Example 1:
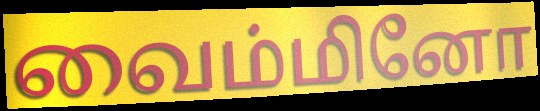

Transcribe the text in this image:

வைம்மினோ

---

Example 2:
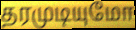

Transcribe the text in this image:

தரமுடியுமோ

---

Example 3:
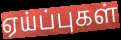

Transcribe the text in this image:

ஏய்ப்புகள்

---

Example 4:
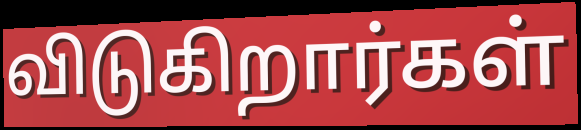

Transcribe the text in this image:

விடுகிறார்கள்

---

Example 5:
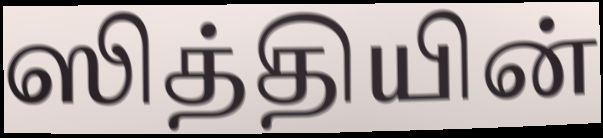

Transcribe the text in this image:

ஸித்தியின்